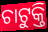
ଚାଟୁକ୍ତି